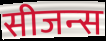
सीजन्स